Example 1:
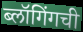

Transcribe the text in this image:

ब्लॉगिंगची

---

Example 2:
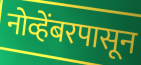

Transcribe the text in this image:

नोव्हेंबरपासून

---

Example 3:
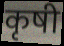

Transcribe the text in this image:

कृषी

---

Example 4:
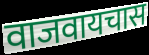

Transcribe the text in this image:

वाजवायचास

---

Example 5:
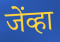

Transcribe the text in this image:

जेंव्हा